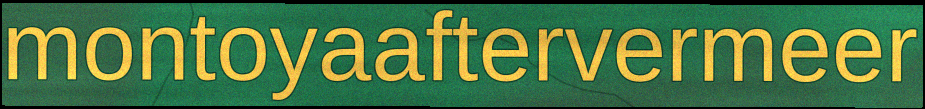
montoyaaftervermeer